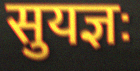
सुयज्ञः